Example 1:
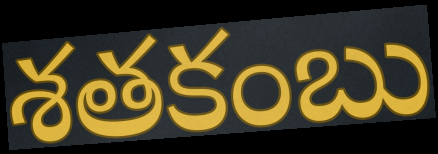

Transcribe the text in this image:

శతకంబు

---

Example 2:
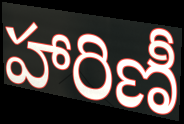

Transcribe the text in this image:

హారిణీ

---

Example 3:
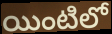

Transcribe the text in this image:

యింటిలో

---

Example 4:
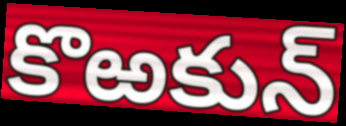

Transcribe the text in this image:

కొఱకున్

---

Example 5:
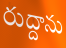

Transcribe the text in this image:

రుద్దాను